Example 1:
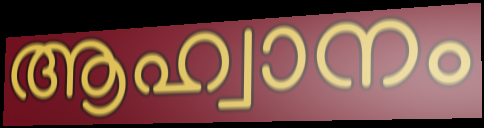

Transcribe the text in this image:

ആഹ്വാനം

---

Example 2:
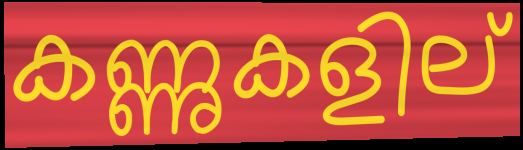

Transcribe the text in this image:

കണ്ണുകളില്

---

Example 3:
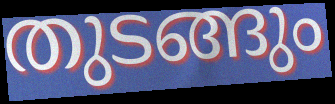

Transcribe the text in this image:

തുടങ്ങും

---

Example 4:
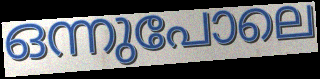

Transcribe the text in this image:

ഒന്നുപോലെ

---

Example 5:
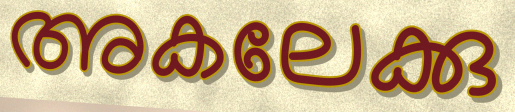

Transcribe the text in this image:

അകലേക്കു